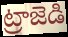
ట్రాజెడి